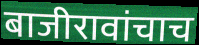
बाजीरावांचाच